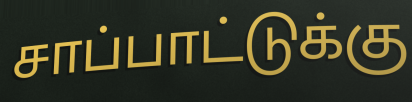
சாப்பாட்டுக்கு